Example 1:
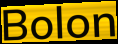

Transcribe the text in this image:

Bolon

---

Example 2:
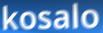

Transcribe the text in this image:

kosalo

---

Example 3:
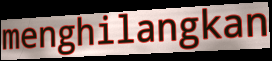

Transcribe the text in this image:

menghilangkan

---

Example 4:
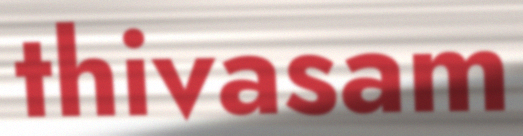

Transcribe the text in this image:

thivasam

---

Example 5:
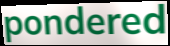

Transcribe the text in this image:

pondered